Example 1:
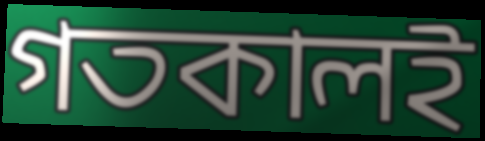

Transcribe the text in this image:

গতকালই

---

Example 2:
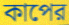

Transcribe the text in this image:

কাপের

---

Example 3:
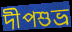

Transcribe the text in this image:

দীপশুভ্র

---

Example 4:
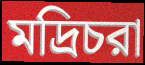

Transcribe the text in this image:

মদ্রিচরা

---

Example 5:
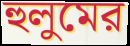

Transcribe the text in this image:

হুলুমের